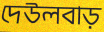
দেউলবাড়